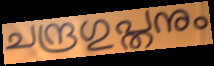
ചന്ദ്രഗുപ്തനും